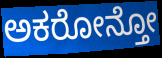
ಅಕರೋನ್ತೋ